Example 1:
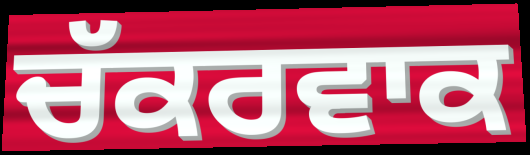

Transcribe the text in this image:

ਚੱਕਰਵਾਕ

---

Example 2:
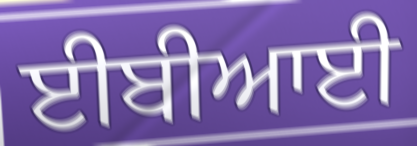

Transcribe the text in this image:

ਈਬੀਆਈ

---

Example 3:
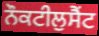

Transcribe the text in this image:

ਨੌਕਟੀਲੁਸੈਂਟ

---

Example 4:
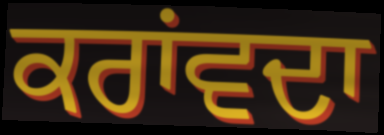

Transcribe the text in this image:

ਕਰਾਂਵਦਾ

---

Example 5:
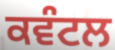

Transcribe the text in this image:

ਕਵੰਟਲ